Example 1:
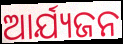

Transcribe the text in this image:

ଆର୍ଯ୍ୟଜନ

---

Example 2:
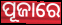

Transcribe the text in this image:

ପୂଜାରେ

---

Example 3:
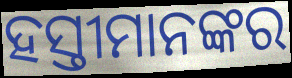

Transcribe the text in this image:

ହସ୍ତୀମାନଙ୍କର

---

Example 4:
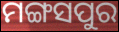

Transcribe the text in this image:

ମଙ୍ଗସପୁର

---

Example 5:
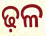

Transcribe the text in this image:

ଢ଼ଳ